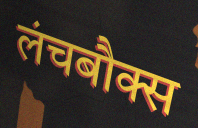
लंचबौक्स